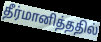
தீர்மானித்ததில்